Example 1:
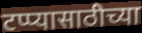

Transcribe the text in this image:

टप्प्यासाठीच्या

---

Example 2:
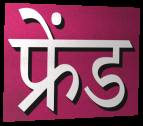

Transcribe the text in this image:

फ्रेंड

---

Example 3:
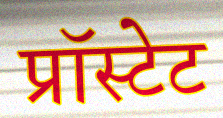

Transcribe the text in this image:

प्रॉस्टेट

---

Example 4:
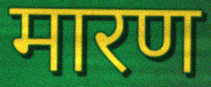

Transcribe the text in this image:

मारण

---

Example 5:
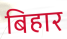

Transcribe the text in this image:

बिहार